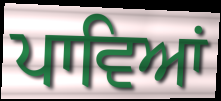
ਪਾਵਿਆਂ